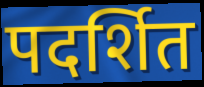
पदर्शित